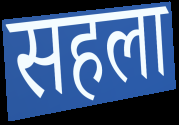
सहला